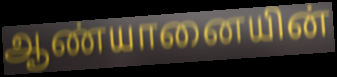
ஆண்யானையின்